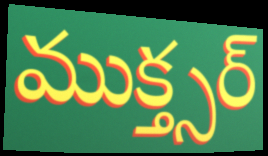
ముక్త్సర్